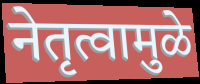
नेतृत्वामुळे